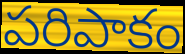
పరిపాకం